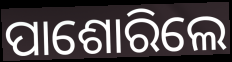
ପାଶୋରିଲେ